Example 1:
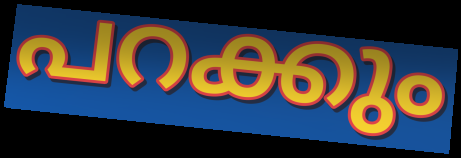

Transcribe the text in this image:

പറക്കും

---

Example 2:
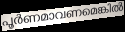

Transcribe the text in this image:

പൂർണമാവണമെങ്കിൽ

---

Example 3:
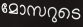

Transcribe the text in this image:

മോസറുടെ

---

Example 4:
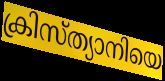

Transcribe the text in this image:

ക്രിസ്ത്യാനിയെ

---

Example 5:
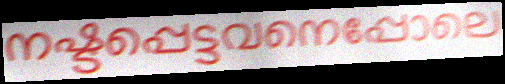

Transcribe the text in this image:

നഷ്ടപ്പെട്ടവനെപ്പോലെ